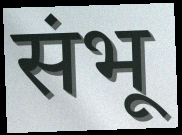
संभू